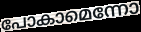
പോകാമെന്നോ